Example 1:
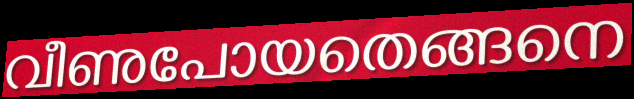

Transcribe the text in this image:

വീണുപോയതെങ്ങനെ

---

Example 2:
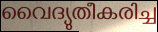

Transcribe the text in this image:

വൈദ്യുതീകരിച്ച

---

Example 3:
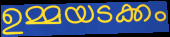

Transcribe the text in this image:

ഉമ്മയടക്കം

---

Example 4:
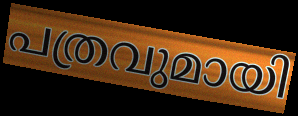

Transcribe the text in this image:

പത്രവുമായി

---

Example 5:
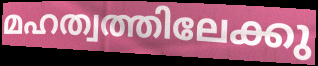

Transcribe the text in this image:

മഹത്വത്തിലേക്കു